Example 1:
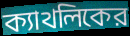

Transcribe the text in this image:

ক্যাথলিকের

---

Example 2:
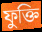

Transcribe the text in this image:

ফুক্তি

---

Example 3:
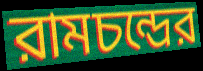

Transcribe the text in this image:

রামচন্দ্রের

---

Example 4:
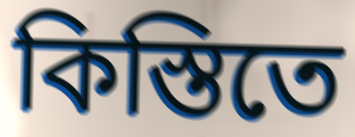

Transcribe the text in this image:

কিস্তিতে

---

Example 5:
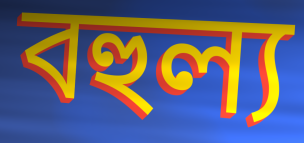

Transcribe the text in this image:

বহুল্য